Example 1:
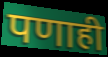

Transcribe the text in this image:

पणाही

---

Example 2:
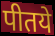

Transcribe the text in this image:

पीतये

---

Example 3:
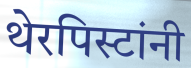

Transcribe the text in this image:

थेरपिस्टांनी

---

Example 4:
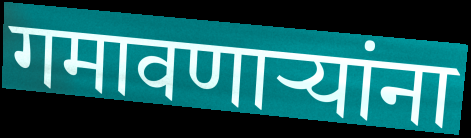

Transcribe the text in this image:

गमावणाऱ्यांना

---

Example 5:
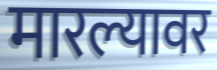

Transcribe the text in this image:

मारल्यावर